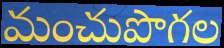
మంచుపొగల